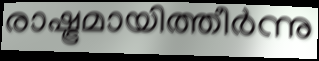
രാഷ്ട്രമായിത്തീർന്നു